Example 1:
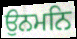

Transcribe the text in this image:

ਉਨਮਨਿ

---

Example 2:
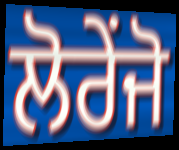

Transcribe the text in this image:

ਲੋਰੇਂਜੋ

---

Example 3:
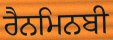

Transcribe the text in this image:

ਰੈਨਮਿਨਬੀ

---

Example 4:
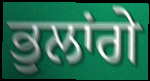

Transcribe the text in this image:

ਭੁਲਾਂਗੇ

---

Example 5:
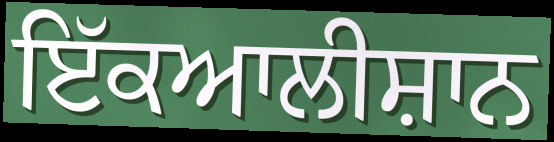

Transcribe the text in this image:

ਇੱਕਆਲੀਸ਼ਾਨ